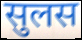
सुलस